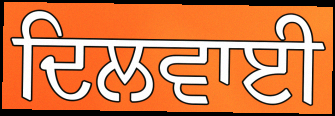
ਦਿਲਵਾਈ